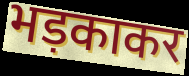
भड़काकर